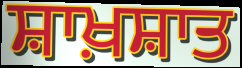
ਸ਼ਾਖ਼ਸ਼ਾਤ